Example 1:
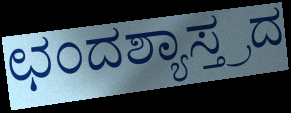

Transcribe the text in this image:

ಛಂದಶ್ಯಾಸ್ತ್ರದ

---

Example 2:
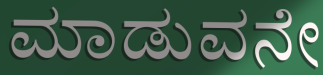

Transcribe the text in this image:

ಮಾಡುವನೇ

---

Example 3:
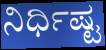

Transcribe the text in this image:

ನಿರ್ಧಿಷ್ಟ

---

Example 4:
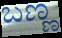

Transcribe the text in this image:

ಬಣ್ಣ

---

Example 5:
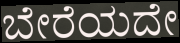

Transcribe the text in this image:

ಬೇರೆಯದೇ